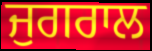
ਜੁਗਰਾਲ